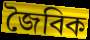
জৈবিক